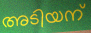
അടിയന്